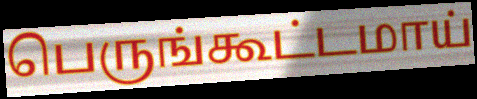
பெருங்கூட்டமாய்